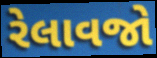
રેલાવજો